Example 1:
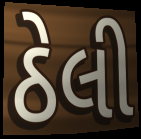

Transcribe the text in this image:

ઠેલી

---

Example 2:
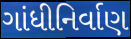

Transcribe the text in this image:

ગાંધીનિર્વાણ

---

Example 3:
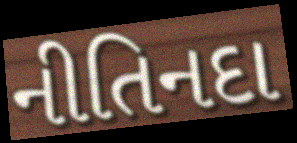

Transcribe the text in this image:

નીતિનદા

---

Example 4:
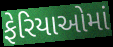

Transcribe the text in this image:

ફેરિયાઓમાં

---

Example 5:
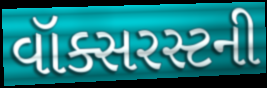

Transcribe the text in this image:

વૉક્સરસ્ટની